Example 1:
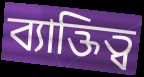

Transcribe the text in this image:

ব্যাক্তিত্ব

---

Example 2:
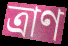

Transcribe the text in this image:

ত্রাণ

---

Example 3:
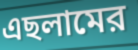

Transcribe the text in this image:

এছলামের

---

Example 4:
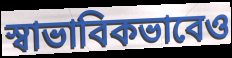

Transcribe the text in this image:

স্বাভাবিকভাবেও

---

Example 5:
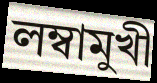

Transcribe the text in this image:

লম্বামুখী